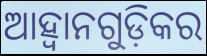
ଆହ୍ୱାନଗୁଡ଼ିକର